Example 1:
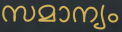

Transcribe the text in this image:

സമാന്യം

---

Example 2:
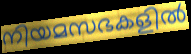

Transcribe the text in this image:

നിയമസഭകളിൽ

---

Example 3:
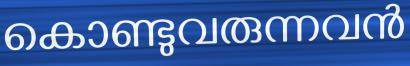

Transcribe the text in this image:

കൊണ്ടുവരുന്നവൻ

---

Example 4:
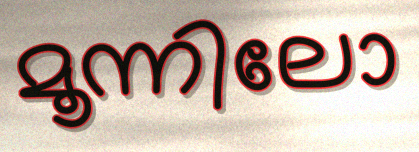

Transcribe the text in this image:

മൂന്നിലോ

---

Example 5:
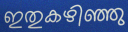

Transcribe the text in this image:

ഇതുകഴിഞ്ഞു